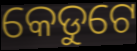
କେଡୁଟେ